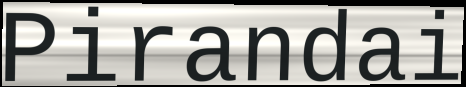
Pirandai